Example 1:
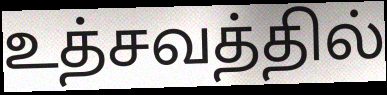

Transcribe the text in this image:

உத்சவத்தில்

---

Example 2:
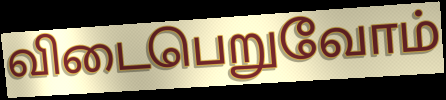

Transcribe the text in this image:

விடைபெறுவோம்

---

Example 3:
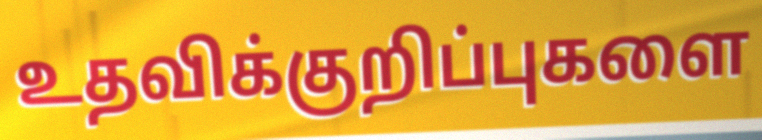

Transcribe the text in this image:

உதவிக்குறிப்புகளை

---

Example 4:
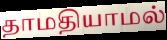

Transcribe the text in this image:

தாமதியாமல்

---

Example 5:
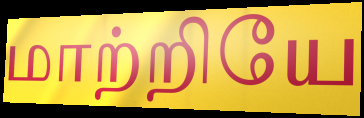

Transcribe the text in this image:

மாற்றியே